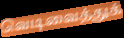
வெடிவைத்துக்